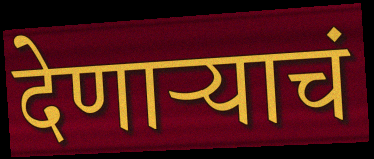
देणाऱ्याचं